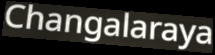
Changalaraya